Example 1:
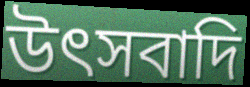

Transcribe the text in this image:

উৎসবাদি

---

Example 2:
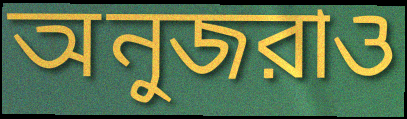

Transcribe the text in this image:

অনুজরাও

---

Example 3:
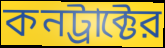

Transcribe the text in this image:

কনট্রাক্টের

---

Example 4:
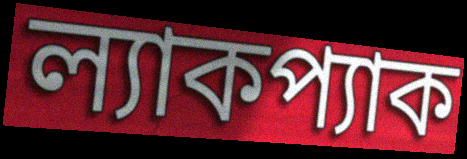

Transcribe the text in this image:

ল্যাকপ্যাক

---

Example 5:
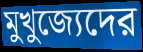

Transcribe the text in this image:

মুখুজ্যেদের